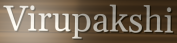
Virupakshi